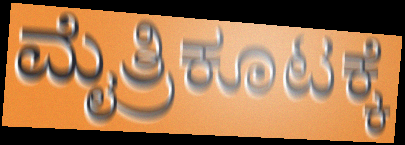
ಮೈತ್ರಿಕೂಟಕ್ಕೆ